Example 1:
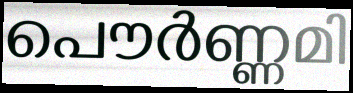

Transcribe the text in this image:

പൌർണ്ണമി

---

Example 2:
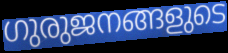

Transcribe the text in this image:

ഗുരുജനങ്ങളുടെ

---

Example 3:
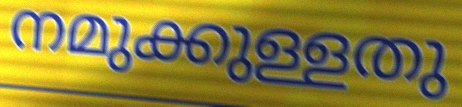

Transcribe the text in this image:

നമുക്കുള്ളതു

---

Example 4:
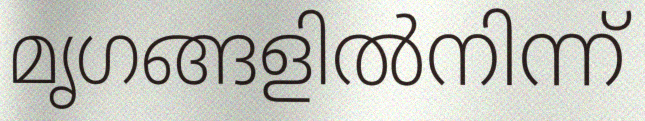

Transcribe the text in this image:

മൃഗങ്ങളിൽനിന്ന്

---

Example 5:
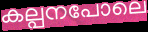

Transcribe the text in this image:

കല്പനപോലെ